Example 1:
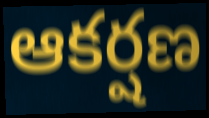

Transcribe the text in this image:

ఆకర్షణ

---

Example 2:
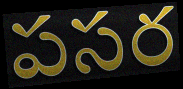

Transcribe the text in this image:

పసర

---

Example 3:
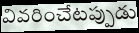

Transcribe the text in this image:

వివరించేటప్పుడు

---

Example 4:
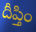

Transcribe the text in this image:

దీప్తిం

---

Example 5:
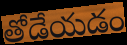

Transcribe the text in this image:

తోడేయడం